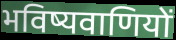
भविष्यवाणियों